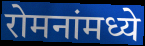
रोमनांमध्ये